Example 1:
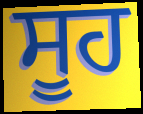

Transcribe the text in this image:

ਸੂਹ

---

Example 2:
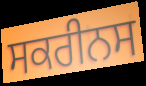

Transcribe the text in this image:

ਸਕਰੀਨਸ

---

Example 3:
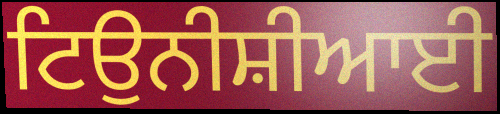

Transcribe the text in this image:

ਟਿਉਨੀਸ਼ੀਆਈ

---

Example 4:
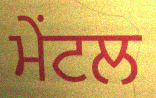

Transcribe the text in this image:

ਮੇਂਟਲ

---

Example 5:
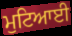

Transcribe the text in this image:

ਮੁਟਿਆਈ